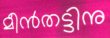
മീൻതട്ടിനു